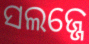
ସଲଜ୍ଜେ